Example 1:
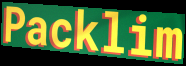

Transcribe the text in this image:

Packlim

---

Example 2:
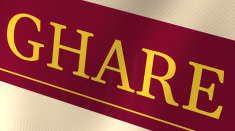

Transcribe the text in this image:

GHARE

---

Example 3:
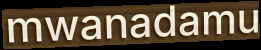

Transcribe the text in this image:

mwanadamu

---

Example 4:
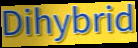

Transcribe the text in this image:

Dihybrid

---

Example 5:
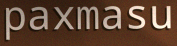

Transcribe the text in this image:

paxmasu